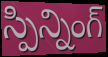
స్పిన్నింగ్